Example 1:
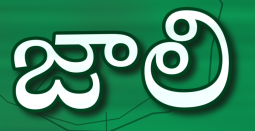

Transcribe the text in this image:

జాలి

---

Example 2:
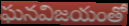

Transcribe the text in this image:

ఘనవిజయంతో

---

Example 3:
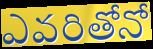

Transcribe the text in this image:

ఎవరితోనో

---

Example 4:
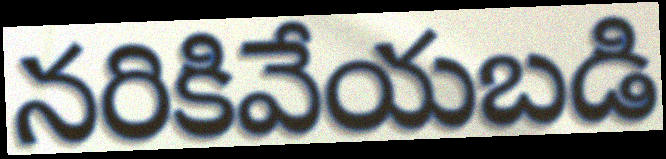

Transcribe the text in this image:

నరికివేయబడి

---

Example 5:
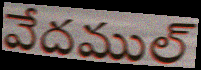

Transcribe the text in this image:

వేదముల్